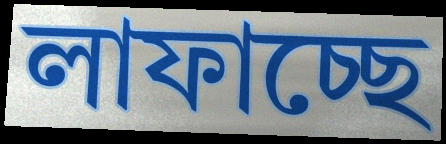
লাফাচ্ছে